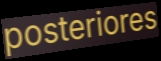
posteriores